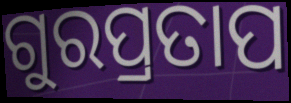
ଗୁରପ୍ରତାପ